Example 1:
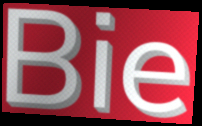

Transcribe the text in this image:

Bie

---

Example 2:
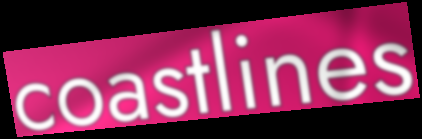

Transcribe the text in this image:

coastlines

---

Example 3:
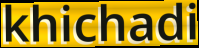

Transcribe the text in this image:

khichadi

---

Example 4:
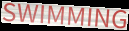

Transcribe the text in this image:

SWIMMING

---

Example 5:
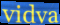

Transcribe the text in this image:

vidva